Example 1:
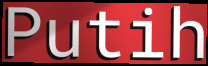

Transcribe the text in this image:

Putih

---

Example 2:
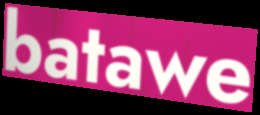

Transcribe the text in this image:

batawe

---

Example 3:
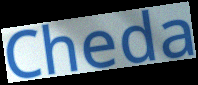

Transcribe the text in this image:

Cheda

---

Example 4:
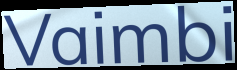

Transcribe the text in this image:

Vaimbi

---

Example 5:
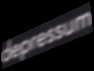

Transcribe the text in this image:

depressum